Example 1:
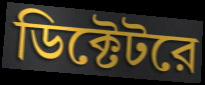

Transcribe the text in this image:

ডিক্টেটরে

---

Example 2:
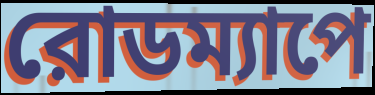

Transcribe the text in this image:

রোডম্যাপে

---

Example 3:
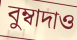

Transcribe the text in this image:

বুম্বাদাও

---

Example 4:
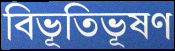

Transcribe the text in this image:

বিভূতিভূষণ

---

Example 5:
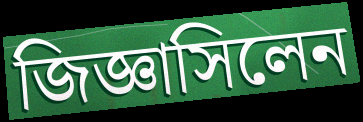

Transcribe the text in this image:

জিজ্ঞাসিলেন